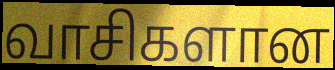
வாசிகளான